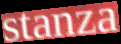
stanza